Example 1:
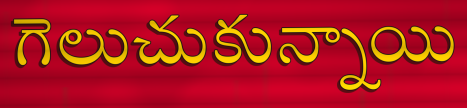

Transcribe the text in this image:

గెలుచుకున్నాయి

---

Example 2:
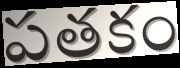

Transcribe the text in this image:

పతకం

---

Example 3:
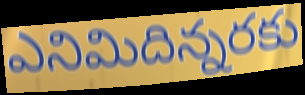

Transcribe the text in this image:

ఎనిమిదిన్నరకు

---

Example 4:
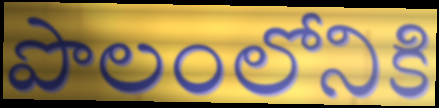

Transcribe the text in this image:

పొలంలోనికి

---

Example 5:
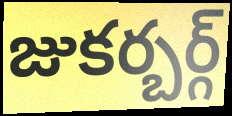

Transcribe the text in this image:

జుకర్బర్గ్